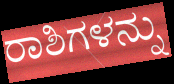
ರಾಶಿಗಳನ್ನು